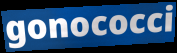
gonococci